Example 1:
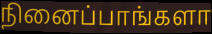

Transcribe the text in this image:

நினைப்பாங்களா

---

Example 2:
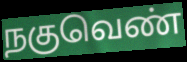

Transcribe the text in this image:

நகுவெண்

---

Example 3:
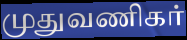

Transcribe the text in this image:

முதுவணிகர்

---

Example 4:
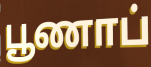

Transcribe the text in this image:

பூணாப்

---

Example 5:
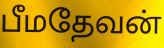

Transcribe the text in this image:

பீமதேவன்